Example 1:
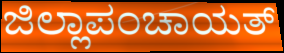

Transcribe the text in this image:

ಜಿಲ್ಲಾಪಂಚಾಯತ್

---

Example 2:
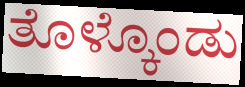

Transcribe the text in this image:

ತೊಳ್ಕೊಂಡು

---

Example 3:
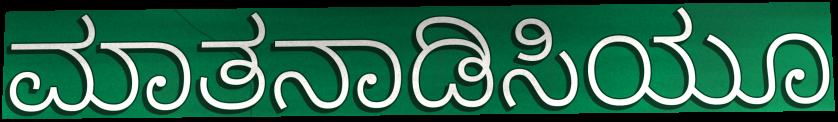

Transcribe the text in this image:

ಮಾತನಾಡಿಸಿಯೂ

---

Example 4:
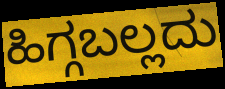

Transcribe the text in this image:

ಹಿಗ್ಗಬಲ್ಲದು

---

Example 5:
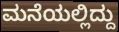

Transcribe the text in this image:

ಮನೆಯಲ್ಲಿದ್ದು